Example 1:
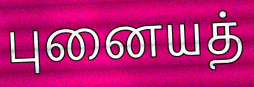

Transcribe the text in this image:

புனையத்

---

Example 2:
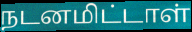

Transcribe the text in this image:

நடனமிட்டாள்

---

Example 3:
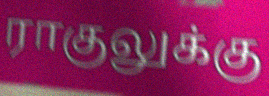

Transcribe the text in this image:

ராகுலுக்கு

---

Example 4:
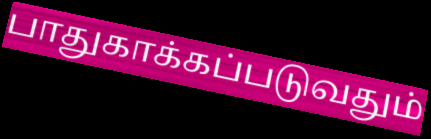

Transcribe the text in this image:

பாதுகாக்கப்படுவதும்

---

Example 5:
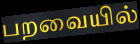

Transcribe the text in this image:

பறவையில்